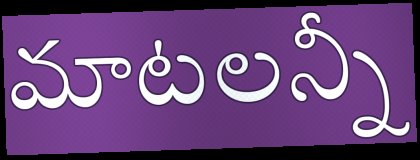
మాటలన్నీ